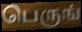
பெருங்